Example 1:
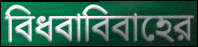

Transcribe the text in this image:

বিধবাবিবাহের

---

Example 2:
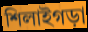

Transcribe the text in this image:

শিলাইগড়া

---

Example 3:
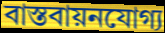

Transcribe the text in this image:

বাস্তবায়নযোগ্য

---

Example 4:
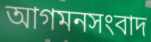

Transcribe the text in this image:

আগমনসংবাদ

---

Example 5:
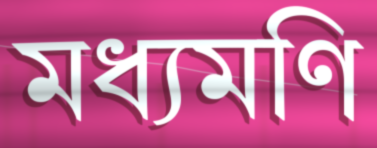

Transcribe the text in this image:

মধ্যমণি